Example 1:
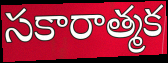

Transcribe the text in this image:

సకారాత్మక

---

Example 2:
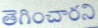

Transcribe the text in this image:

తెగించారని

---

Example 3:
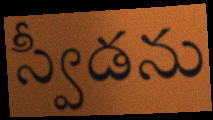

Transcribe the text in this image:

స్వీడను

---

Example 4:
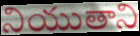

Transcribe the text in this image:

నియుతాని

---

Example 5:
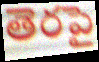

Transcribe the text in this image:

తెరపై